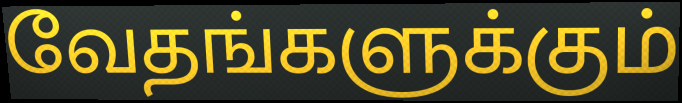
வேதங்களுக்கும்